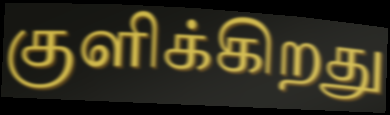
குளிக்கிறது